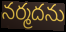
నర్మదను